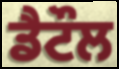
ਡੈਟੌਲ